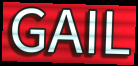
GAIL